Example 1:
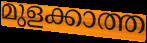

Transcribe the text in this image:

മുളക്കാത്ത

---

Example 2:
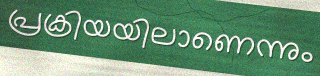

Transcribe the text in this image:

പ്രക്രിയയിലാണെന്നും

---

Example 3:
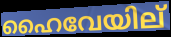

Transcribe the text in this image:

ഹൈവേയില്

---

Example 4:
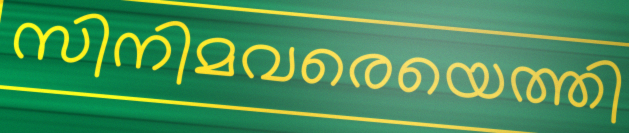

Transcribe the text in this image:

സിനിമവരെയെത്തി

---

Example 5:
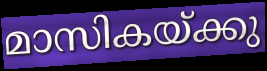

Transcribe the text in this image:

മാസികയ്ക്കു